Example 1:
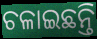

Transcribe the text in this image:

ଚଳାଇଛନ୍ତି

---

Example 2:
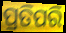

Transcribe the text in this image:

ପ୍ରତିପରି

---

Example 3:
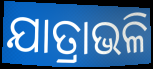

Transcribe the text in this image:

ଯାତ୍ରାଭଳି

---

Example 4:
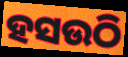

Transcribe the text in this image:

ହସଉଠି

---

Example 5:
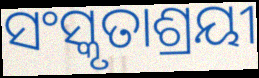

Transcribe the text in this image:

ସଂସ୍କୃତାଶ୍ରୟୀ